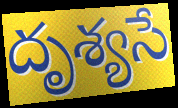
దృశ్యసే